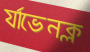
র্যাভেনক্ল